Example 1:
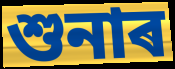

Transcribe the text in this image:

শুনাৰ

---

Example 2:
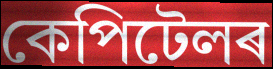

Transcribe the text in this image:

কেপিটেলৰ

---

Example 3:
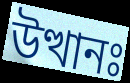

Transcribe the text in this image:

উত্থানঃ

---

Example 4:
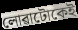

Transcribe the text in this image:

লোৱাটোকেই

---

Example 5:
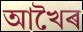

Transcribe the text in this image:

আখৈৰ